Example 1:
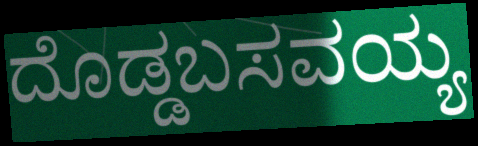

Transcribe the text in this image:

ದೊಡ್ಡಬಸವಯ್ಯ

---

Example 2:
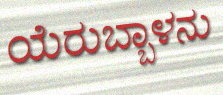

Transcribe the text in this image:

ಯೆರುಬ್ಬಾಳನು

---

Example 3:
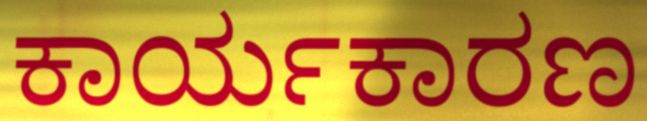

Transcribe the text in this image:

ಕಾರ್ಯಕಾರಣ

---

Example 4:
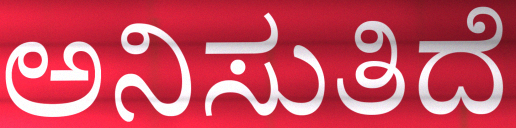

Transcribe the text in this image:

ಅನಿಸುತಿದೆ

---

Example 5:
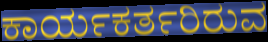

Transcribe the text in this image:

ಕಾರ್ಯಕರ್ತರಿರುವ